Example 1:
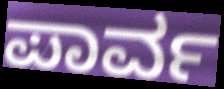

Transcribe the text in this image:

ಪಾರ್ವ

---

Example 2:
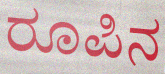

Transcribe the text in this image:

ರೂಪಿನ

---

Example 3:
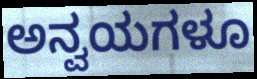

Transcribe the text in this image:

ಅನ್ವಯಗಳೂ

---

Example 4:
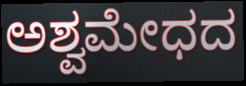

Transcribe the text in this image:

ಅಶ್ವಮೇಧದ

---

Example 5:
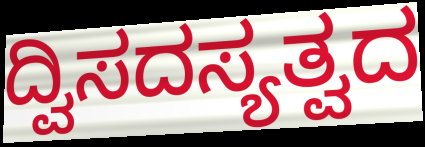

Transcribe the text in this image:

ದ್ವಿಸದಸ್ಯತ್ವದ